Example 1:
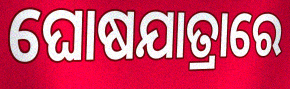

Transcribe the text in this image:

ଘୋଷଯାତ୍ରାରେ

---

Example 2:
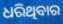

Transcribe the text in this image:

ଧରିଥିବାର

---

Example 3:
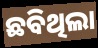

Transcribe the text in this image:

ଛବିଥିଲା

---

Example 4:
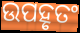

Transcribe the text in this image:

ଉପହୃତଂ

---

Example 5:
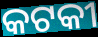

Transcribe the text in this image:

କଟକୀ